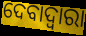
ଦେବାଦ୍ବାରା